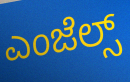
ಎಂಜೆಲ್ಸ್